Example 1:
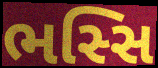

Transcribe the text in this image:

ભસ્સિ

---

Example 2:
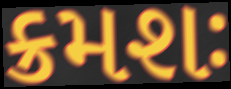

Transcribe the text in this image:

ક્રમશઃ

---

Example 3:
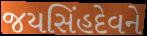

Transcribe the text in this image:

જયસિંહદેવને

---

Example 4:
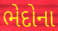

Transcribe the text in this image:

ભેદોના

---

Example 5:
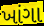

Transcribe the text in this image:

ખાંગા